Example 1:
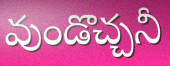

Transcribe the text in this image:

వుండొచ్చనీ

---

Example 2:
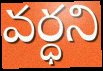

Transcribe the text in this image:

వర్ధని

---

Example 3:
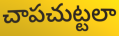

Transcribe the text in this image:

చాపచుట్టలా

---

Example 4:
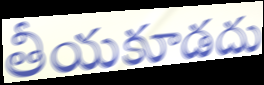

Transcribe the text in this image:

తీయకూడదు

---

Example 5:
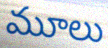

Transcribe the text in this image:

మూలు